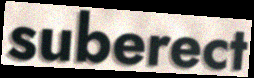
suberect